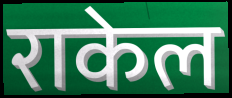
राकेल